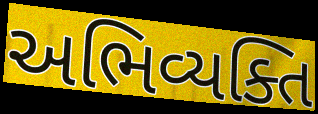
અભિવ્યક્તિ